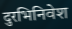
दुरभिनिवेश